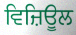
ਵਿਜ਼ਿਊਲ